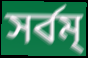
সর্বম্